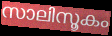
സാലിസൂകം